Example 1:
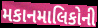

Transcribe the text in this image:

મકાનમાલિકોની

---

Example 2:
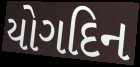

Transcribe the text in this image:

યોગદિન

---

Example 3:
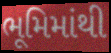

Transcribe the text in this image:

ભૂમિમાંથી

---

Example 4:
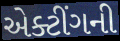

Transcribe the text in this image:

એક્ટીંગની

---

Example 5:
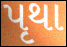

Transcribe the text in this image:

પૃથા